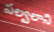
పల్వలాని